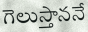
గెలుస్తాననే